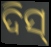
ଦିସ୍